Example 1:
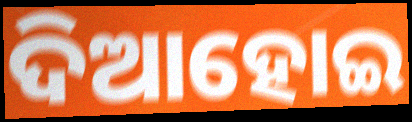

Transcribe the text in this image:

ଦିଆହୋଇ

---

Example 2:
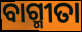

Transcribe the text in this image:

ବାଗ୍ମୀତା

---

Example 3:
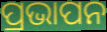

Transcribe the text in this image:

ପ୍ରଭାପନ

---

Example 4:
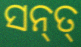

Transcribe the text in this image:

ସନ୍‌ତ୍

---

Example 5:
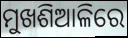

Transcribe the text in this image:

ମୁଖଶିଆଳିରେ